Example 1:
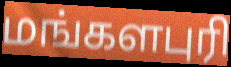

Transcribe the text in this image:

மங்களபுரி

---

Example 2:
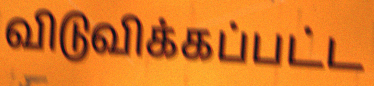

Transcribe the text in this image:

விடுவிக்கப்பட்ட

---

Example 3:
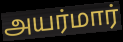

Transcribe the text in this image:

அயர்மார்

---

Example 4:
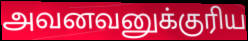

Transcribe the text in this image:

அவனவனுக்குரிய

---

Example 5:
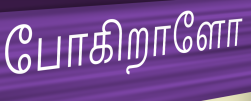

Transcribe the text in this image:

போகிறாளோ